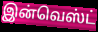
இன்வெஸ்ட்